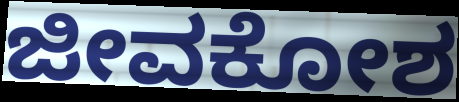
ಜೀವಕೋಶ